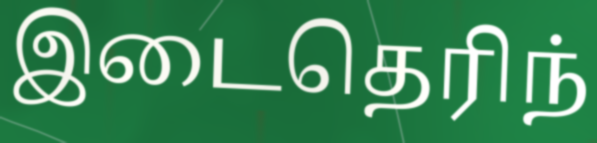
இடைதெரிந்